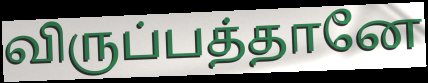
விருப்பத்தானே